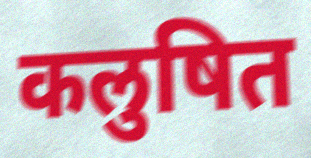
कलुषित